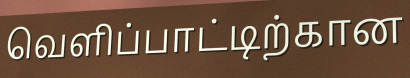
வெளிப்பாட்டிற்கான